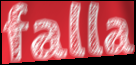
falla